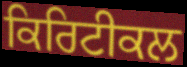
ਕਿਰਿਟੀਕਲ